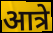
आत्रे